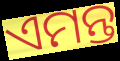
ଏମନ୍ତ